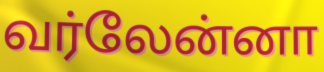
வர்லேன்னா